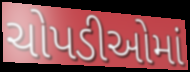
ચોપડીઓમાં